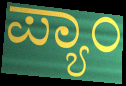
ಪ್ಯಾಂ